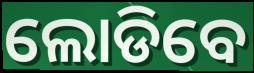
ଲୋଡିବେ